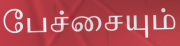
பேச்சையும்